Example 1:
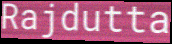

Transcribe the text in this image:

Rajdutta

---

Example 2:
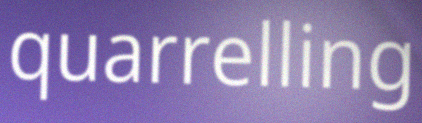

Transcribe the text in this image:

quarrelling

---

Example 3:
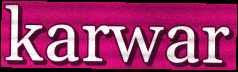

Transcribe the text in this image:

karwar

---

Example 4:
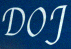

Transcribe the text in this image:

DOJ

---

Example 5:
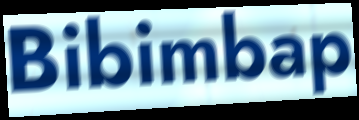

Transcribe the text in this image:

Bibimbap